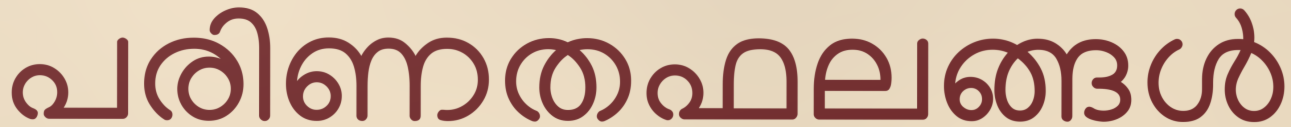
പരിണതഫലങ്ങൾ